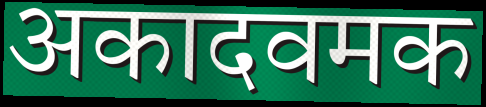
अकादवमक